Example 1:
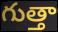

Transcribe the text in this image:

గుత్తా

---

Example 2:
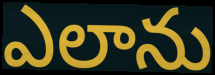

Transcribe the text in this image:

ఎలాను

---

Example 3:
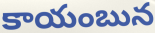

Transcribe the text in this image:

కాయంబున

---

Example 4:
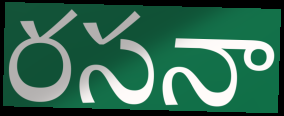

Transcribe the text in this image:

రసనా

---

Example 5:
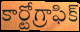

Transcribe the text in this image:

కార్టోగ్రాఫిక్